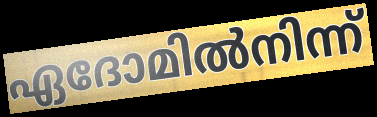
ഏദോമിൽനിന്ന്